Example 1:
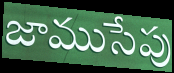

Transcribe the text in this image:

జాముసేపు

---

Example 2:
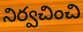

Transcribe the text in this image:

నిర్వచించి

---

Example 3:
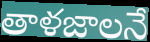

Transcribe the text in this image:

తాళజాలనే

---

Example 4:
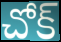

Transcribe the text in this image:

చోక్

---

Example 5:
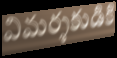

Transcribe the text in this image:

విమర్శకుడికి